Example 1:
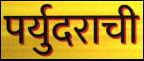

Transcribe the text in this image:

पर्युदराची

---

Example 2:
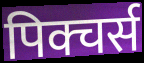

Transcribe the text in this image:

पिक्चर्स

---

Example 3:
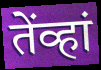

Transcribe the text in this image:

तेंव्हां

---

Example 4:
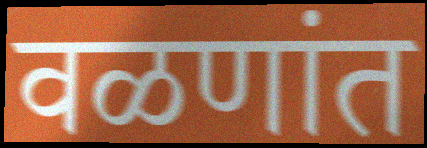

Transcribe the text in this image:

वळणांत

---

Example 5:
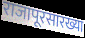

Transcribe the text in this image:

राजापूरसारख्या